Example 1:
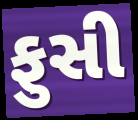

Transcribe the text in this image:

ફુસી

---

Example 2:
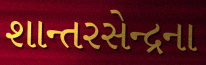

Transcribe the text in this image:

શાન્તરસેન્દ્રના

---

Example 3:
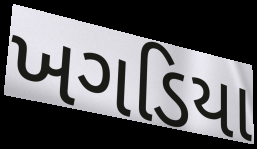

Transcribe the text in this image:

ખગડિયા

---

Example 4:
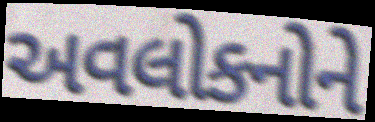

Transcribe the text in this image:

અવલોકનોને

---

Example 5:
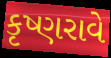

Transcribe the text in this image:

કૃષ્ણરાવે